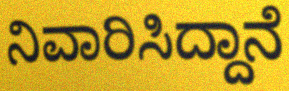
ನಿವಾರಿಸಿದ್ದಾನೆ